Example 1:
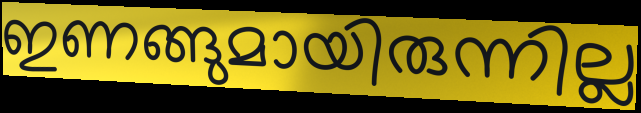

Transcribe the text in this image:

ഇണങ്ങുമായിരുന്നില്ല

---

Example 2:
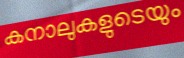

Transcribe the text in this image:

കനാലുകളുടെയും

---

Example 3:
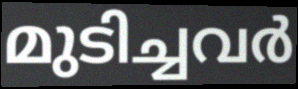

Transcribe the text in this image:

മുടിച്ചവർ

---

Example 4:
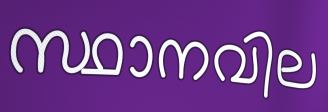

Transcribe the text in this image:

സ്ഥാനവില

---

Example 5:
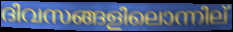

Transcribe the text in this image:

ദിവസങ്ങളിലൊന്നില്